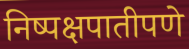
निष्पक्षपातीपणे